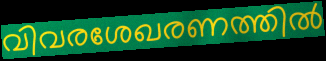
വിവരശേഖരണത്തിൽ